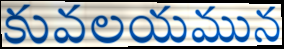
కువలయమున